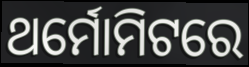
ଥର୍ମୋମିଟରେ